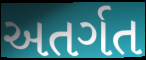
અતર્ગત